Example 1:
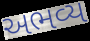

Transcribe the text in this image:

અભવ્ય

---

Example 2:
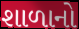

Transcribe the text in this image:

શાળાનો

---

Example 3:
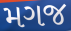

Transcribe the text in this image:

મગજ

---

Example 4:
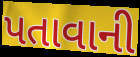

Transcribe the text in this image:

પતાવાની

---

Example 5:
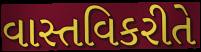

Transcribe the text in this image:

વાસ્તવિકરીતે